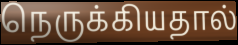
நெருக்கியதால்